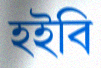
হইবি